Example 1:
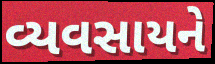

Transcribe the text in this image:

વ્યવસાયને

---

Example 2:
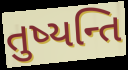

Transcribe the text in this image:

તુષ્યન્તિ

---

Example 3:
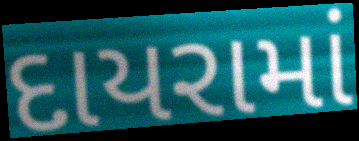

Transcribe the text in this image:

દાયરામાં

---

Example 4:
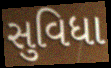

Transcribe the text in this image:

સુવિધા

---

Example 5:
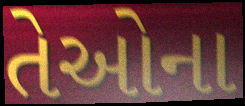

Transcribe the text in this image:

તેઓના